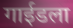
गाईडला